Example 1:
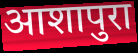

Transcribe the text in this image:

आशापुरा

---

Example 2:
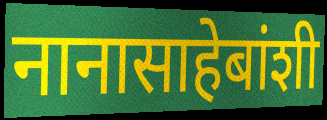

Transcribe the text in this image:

नानासाहेबांशी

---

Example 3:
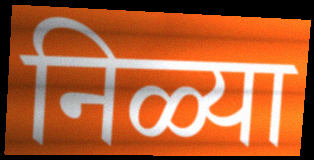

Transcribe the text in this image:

निळ्या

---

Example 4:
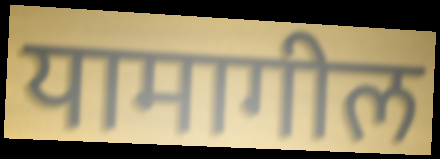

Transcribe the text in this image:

यामागील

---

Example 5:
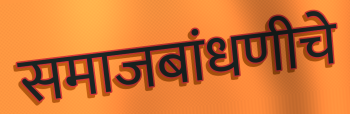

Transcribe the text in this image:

समाजबांधणीचे